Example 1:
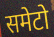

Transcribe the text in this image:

समेटो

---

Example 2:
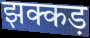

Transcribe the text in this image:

झक्कड़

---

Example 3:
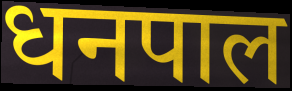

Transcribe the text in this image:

धनपाल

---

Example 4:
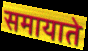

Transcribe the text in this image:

समायाते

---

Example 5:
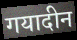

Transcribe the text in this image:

गयादीन